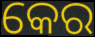
କେର